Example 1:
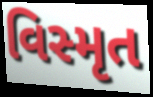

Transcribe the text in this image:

વિસ્મૃત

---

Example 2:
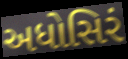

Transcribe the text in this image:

અધોસિરં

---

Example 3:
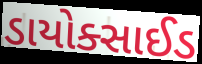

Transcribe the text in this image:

ડાયોક્સાઈડ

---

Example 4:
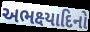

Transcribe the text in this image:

અભક્ષ્યાદિનો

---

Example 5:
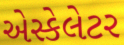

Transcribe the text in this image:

એસ્કેલેટર